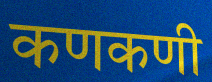
कणकणी